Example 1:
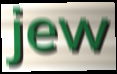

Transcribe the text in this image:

jew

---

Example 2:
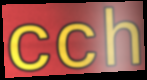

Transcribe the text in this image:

cch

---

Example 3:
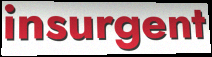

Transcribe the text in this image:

insurgent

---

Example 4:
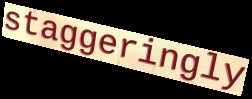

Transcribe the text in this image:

staggeringly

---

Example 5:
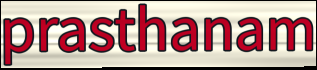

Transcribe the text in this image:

prasthanam